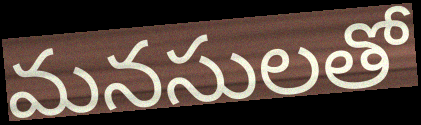
మనసులతో